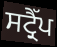
ਸਟ੍ਰੈੱਪ